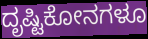
ದೃಷ್ಟಿಕೋನಗಳೂ